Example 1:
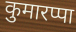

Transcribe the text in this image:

कुमारप्पा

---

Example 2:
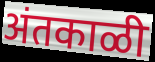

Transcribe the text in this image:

अंतकाळी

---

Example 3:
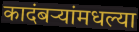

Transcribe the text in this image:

कादंबऱ्यांमधल्या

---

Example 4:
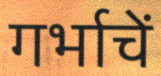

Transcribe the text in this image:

गर्भाचें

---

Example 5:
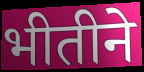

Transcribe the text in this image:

भीतीने